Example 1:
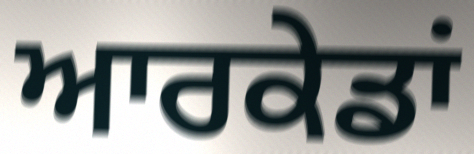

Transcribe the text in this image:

ਆਰਕੇਡਾਂ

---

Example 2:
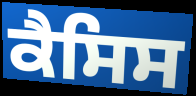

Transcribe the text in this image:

ਕੈਸਿਸ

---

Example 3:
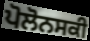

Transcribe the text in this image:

ਪੋਲੋਨਸਕੀ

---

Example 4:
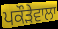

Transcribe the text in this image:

ਪਕੌੜੇਵਾਲਾ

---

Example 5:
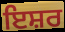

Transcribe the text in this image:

ਇਸ਼ਰ